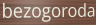
bezogoroda